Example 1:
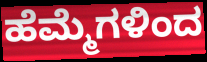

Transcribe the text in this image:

ಹೆಮ್ಮೆಗಳಿಂದ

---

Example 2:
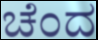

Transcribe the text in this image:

ಚೆಂದ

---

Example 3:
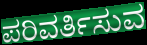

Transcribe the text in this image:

ಪರಿವರ್ತಿಸುವ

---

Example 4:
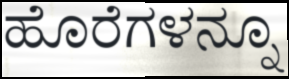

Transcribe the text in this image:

ಹೊರೆಗಳನ್ನೂ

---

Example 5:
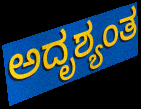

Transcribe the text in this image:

ಅದೃಶ್ಯಂತ